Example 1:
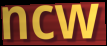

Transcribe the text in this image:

ncw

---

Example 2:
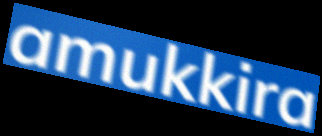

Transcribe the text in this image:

amukkira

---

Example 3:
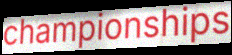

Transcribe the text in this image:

championships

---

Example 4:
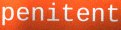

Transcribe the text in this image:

penitent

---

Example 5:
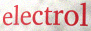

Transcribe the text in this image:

electrol